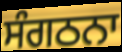
ਸੰਗਠਨਾ